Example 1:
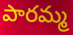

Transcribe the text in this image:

పారమ్మ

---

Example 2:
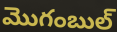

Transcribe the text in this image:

మొగంబుల్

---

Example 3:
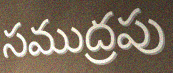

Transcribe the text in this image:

సముద్రపు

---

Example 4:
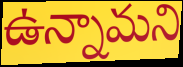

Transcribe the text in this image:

ఉన్నామని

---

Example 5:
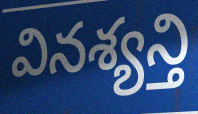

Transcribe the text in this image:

వినశ్యన్తి